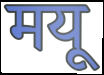
मयू